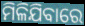
ମିଳିଯିବାରେ